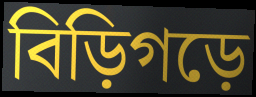
বিড়িগড়ে